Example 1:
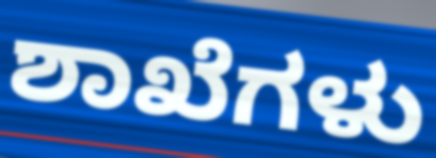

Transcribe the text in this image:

ಶಾಖೆಗಳು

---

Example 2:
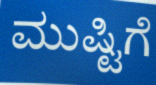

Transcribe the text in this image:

ಮುಷ್ಟಿಗೆ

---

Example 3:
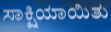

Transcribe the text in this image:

ಸಾಕ್ಷಿಯಾಯಿತು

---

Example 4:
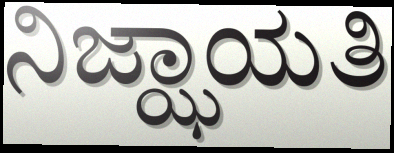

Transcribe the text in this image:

ನಿಜ್ಝಾಯತಿ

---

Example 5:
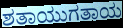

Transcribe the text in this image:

ಶತಾಯುಗತಾಯ